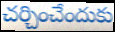
చర్చించేందుకు